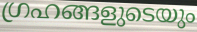
ഗ്രഹങ്ങളുടെയും